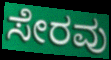
ಸೇರವು